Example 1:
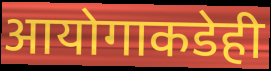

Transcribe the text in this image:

आयोगाकडेही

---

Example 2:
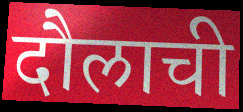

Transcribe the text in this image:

दौलाची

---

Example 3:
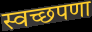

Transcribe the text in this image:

स्वच्छपणा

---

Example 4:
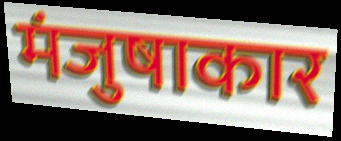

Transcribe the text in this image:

मंजुषाकार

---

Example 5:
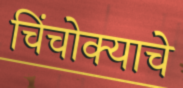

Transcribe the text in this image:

चिंचोक्याचे